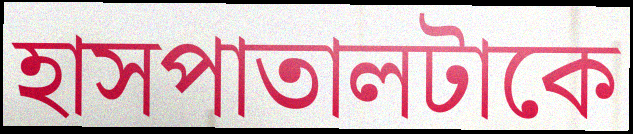
হাসপাতালটাকে